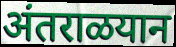
अंतराळयान